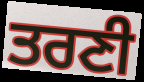
ਤਰਣੀ